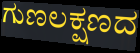
ಗುಣಲಕ್ಷಣದ